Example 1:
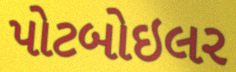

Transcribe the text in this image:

પોટબોઇલર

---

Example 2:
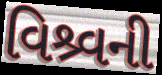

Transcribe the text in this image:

વિશ્ર્વની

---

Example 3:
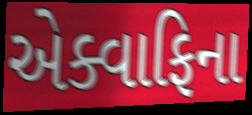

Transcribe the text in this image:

એક્વાફિના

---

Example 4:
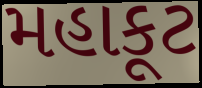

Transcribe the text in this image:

મહાકૂટ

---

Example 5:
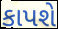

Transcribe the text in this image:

કાપશે